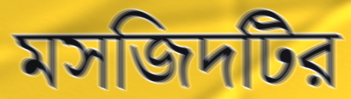
মসজিদটির